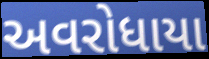
અવરોધાયા